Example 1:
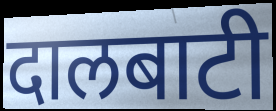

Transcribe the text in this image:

दालबाटी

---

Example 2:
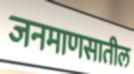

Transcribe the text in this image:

जनमाणसातील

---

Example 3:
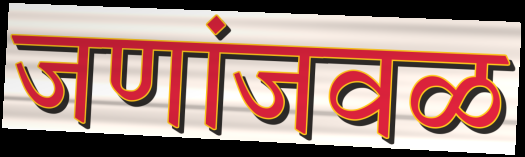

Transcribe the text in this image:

जणांजवळ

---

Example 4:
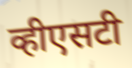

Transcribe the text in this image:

व्हीएसटी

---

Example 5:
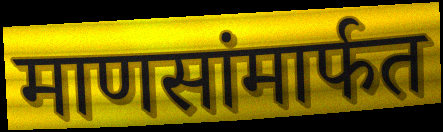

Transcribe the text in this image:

माणसांमार्फत